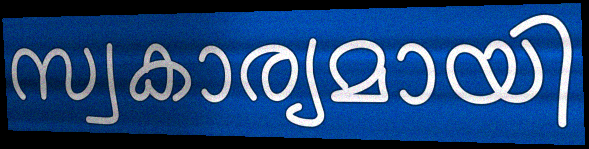
സ്വകാര്യമായി